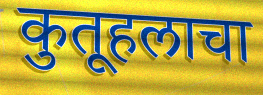
कुतूहलाचा